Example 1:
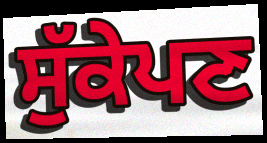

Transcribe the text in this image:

ਸੁੱਕੇਪਣ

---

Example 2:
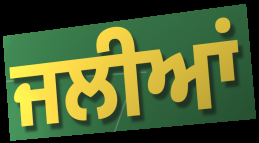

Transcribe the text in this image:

ਜਲੀਆਂ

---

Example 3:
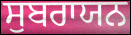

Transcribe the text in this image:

ਸੁਬਰਾਯਨ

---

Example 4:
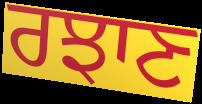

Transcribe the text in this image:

ਰਝਾਣ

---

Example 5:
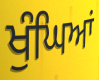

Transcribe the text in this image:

ਖੁੰਘਿਆਂ